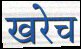
खरेच